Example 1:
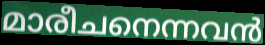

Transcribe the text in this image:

മാരീചനെന്നവൻ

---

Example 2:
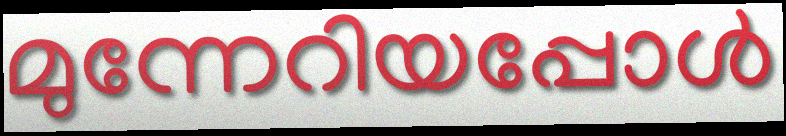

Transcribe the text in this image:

മുന്നേറിയപ്പോൾ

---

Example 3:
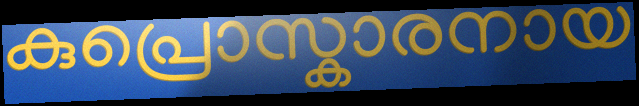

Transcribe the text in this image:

കുപ്രൊസ്കാരനായ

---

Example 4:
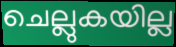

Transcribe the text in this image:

ചെല്ലുകയില്ല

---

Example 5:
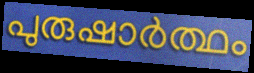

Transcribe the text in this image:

പുരുഷാർത്ഥം